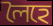
লৈহে